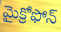
మైక్రోఫోన్